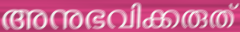
അനുഭവിക്കരുത്